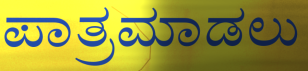
ಪಾತ್ರಮಾಡಲು